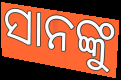
ସାନଙ୍କୁ